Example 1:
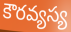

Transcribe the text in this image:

కౌరవ్యస్య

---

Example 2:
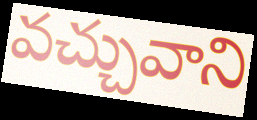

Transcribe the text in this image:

వచ్చువాని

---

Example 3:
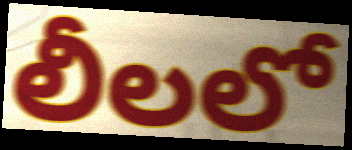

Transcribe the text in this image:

లీలలో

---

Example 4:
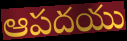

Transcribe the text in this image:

ఆపదయు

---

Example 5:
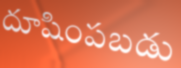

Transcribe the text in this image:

దూషింపబడు